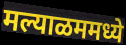
मल्याळममध्ये